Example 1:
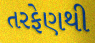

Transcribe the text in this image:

તરફેણથી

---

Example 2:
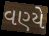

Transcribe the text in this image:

વણ્યે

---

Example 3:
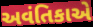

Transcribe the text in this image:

અવંતિકાએ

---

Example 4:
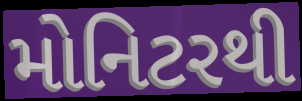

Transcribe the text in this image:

મોનિટરથી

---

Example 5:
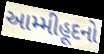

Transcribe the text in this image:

આમ્મીહૂદનો